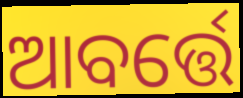
ଆବର୍ତ୍ତେ